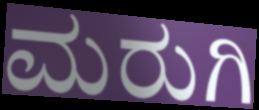
ಮರುಗಿ